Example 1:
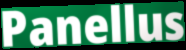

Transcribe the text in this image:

Panellus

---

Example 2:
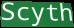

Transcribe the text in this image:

Scyth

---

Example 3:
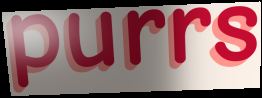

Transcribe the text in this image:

purrs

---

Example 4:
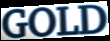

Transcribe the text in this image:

GOLD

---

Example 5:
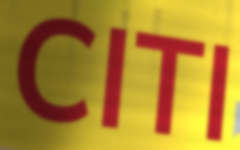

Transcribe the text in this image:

CITI